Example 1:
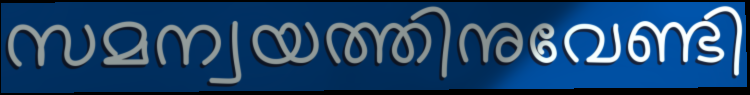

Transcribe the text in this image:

സമന്വയത്തിനുവേണ്ടി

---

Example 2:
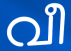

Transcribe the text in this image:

വീ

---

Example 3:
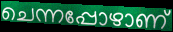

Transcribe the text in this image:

ചെന്നപ്പോഴാണ്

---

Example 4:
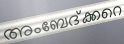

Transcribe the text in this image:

അംബേദ്ക്കറെ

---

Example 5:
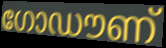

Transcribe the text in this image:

ഗോഡൗണ്